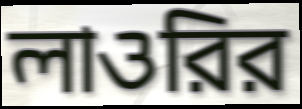
লাওরির